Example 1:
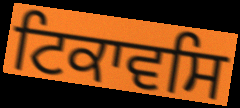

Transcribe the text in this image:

ਟਿਕਾਵਸਿ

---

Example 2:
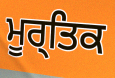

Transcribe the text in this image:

ਮੂਰ੍ਤਿਕ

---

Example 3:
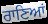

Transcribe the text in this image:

ਰਾਣਿਆਂ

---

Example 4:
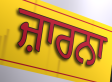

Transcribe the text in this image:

ਜ਼ਾਰਨਾ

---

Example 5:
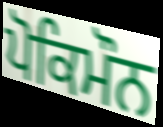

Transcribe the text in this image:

ਪੋਕਿਮੌਨ